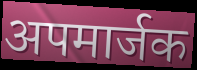
अपमार्जक